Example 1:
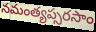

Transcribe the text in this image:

నమంత్యప్సరసాం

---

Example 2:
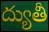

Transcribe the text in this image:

ద్యుతీ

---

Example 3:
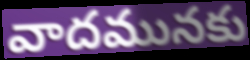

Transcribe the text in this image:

వాదమునకు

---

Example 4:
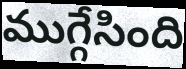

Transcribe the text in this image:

ముగ్గేసింది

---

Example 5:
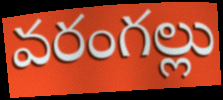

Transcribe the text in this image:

వరంగల్లు